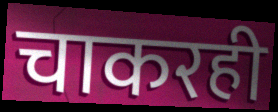
चाकरही